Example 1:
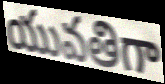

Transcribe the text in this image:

యువతిగా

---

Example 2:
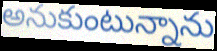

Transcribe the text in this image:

అనుకుంటున్నాను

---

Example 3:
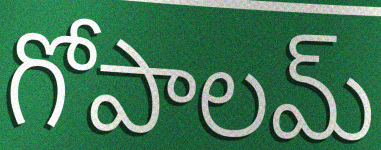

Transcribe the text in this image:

గోపాలమ్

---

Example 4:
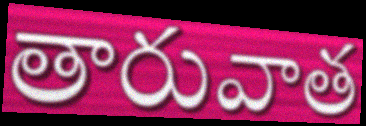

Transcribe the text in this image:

తారువాత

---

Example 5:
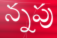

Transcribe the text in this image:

న్నపు